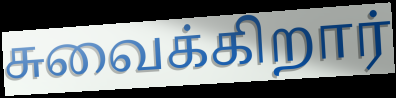
சுவைக்கிறார்